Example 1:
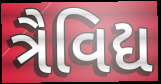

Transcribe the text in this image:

ત્રૈવિદ્ય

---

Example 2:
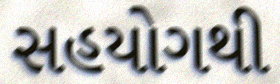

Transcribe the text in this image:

સહયોગથી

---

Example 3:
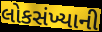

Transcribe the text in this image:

લોકસંખ્યાની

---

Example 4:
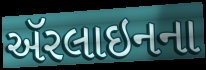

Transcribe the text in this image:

ઍરલાઇનના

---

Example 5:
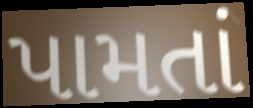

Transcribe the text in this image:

પામતાં